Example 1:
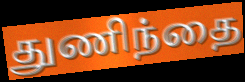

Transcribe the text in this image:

துணிந்தை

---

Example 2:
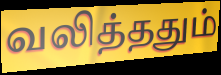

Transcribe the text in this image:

வலித்ததும்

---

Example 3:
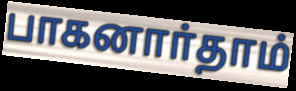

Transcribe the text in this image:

பாகனார்தாம்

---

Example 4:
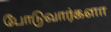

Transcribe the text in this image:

போடுவார்களா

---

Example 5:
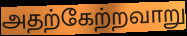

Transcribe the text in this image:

அதற்கேற்றவாறு